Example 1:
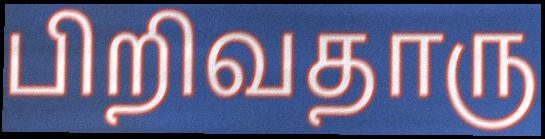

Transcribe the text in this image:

பிறிவதாரு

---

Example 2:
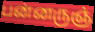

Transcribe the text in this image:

பன்னருஞ்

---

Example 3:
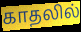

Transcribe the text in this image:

காதலில்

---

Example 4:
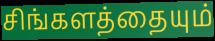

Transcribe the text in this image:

சிங்களத்தையும்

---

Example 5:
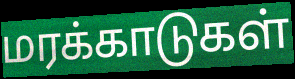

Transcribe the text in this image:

மரக்காடுகள்